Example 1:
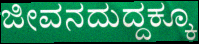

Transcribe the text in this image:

ಜೀವನದುದ್ದಕ್ಕೂ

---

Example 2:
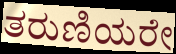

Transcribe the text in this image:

ತರುಣಿಯರೇ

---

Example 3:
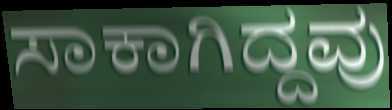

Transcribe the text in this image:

ಸಾಕಾಗಿದ್ದವು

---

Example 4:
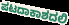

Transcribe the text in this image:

ಪಟದಾಕಾಶದಲಿ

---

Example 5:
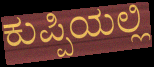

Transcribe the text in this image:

ಕುಪ್ಪಿಯಲ್ಲಿ